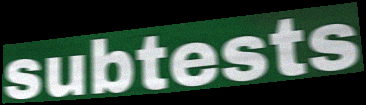
subtests